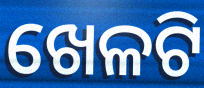
ଖେଳଟି